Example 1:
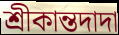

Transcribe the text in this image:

শ্রীকান্তদাদা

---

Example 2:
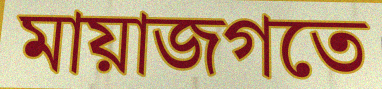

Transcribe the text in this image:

মায়াজগতে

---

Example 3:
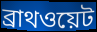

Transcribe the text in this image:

ব্রাথওয়েট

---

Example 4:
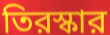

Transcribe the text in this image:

তিরস্কার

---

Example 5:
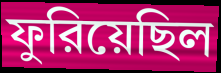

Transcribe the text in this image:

ফুরিয়েছিল